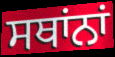
ਸਥਾਂਨਾਂ